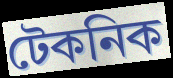
টেকনিক